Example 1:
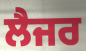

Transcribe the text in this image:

ਲੈਜਰ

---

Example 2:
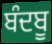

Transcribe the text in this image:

ਬੰਦਬੂ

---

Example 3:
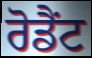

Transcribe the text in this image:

ਰੋਡੈਂਟ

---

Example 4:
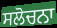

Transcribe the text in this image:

ਸਲੋਚਨਾ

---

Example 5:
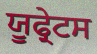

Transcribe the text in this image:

ਯੂਫ੍ਰੇਟਸ